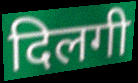
दिलगी